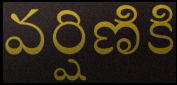
వర్షిణికి